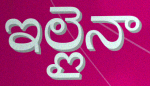
ఇల్లైనా